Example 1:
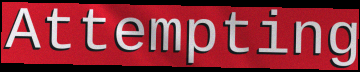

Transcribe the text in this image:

Attempting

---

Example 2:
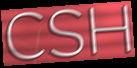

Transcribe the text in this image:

CSH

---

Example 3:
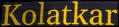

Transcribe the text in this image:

Kolatkar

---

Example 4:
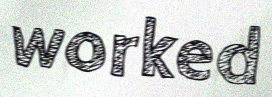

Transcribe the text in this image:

worked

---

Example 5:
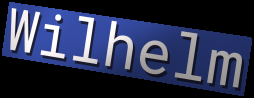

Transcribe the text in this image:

Wilhelm